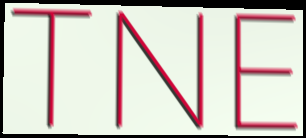
TNE